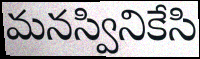
మనస్వినికేసి